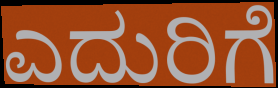
ಎದುರಿಗೆ